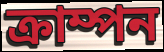
ক্রাম্পন